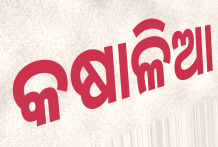
କଷାଳିଆ